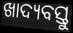
ଖାଦ୍ୟବସ୍ତୁ